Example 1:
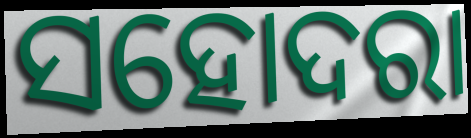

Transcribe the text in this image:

ସହୋଦରା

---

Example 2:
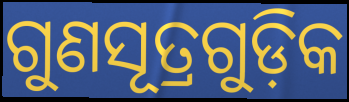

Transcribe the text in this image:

ଗୁଣସୂତ୍ରଗୁଡ଼ିକ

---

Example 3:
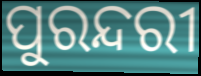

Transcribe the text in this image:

ପୁରନ୍ଦରୀ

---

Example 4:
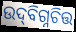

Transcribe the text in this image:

ଉଦ୍‌ବିଗ୍ନଚିତ୍ତ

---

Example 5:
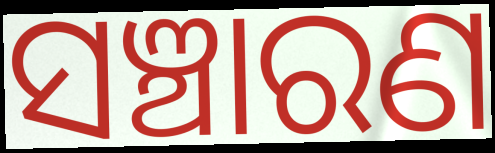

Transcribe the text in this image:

ସଞ୍ଚାରଣ